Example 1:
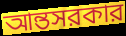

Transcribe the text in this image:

আন্তসরকার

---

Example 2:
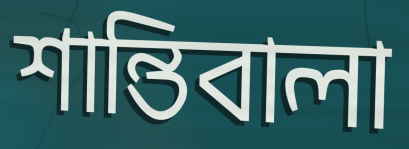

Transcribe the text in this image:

শান্তিবালা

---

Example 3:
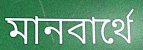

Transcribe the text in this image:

মানবার্থে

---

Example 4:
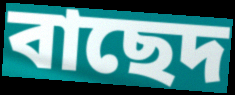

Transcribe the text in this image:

বাছেদ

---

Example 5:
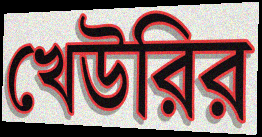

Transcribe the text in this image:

খেউরির